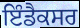
ਇੰਡੈਕਸਰ